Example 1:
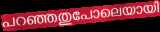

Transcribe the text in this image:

പറഞ്ഞതുപോലെയായി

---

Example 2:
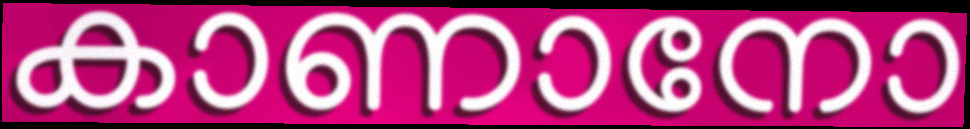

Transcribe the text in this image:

കാണാനോ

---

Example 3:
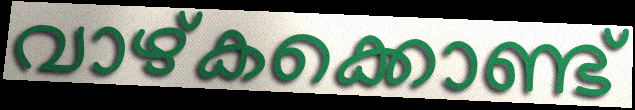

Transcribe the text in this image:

വാഴ്കക്കൊണ്ട്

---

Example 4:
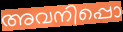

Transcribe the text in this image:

അവനിപ്പൊ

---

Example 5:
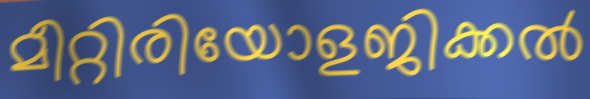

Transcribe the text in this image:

മീറ്റിരിയോളജിക്കൽ